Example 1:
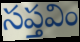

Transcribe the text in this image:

సప్తవిం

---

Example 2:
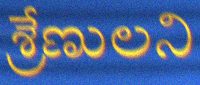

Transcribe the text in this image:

శ్రేణులని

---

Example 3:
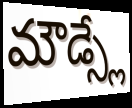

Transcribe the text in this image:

మౌడ్స్లే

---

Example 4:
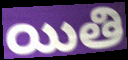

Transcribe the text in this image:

యితి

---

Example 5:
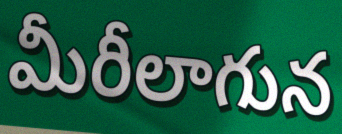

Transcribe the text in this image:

మీరీలాగున